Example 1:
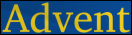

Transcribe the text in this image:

Advent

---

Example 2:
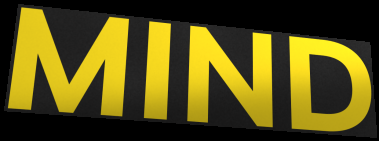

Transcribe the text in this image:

MIND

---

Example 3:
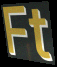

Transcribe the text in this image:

Ft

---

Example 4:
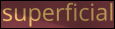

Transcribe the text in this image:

superficial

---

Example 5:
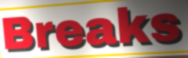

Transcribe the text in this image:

Breaks